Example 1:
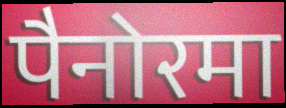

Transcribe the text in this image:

पैनोरमा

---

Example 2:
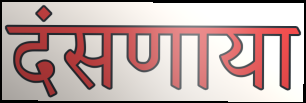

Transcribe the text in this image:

दंसणाया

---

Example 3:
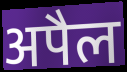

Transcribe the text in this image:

अपैल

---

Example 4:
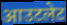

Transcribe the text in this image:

आउटलेट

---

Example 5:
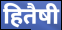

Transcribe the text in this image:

हितैषी